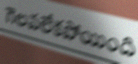
గెలవలేకపోయింది